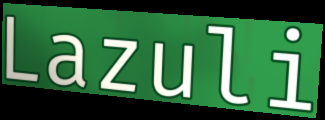
Lazuli